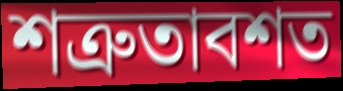
শত্রুতাবশত